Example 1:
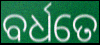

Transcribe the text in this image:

ବର୍ଧତେ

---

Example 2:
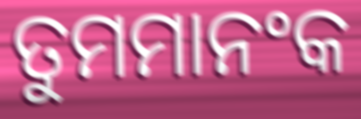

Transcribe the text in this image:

ତୁମମାନଂକ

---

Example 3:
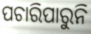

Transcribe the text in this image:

ପଚାରିପାରୁନି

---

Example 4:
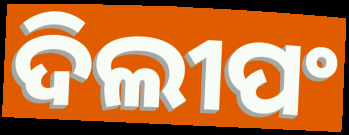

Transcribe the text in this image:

ଦିଲୀପଂ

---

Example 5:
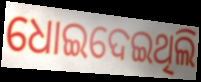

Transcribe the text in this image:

ଧୋଇଦେଇଥିଲି